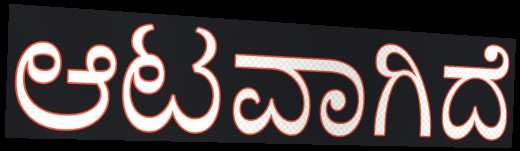
ಆಟವಾಗಿದೆ